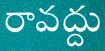
రావద్దు